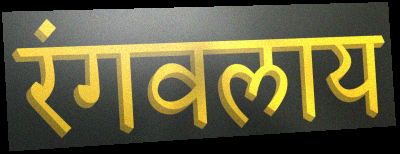
रंगवलाय